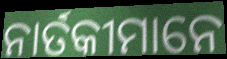
ନାର୍ତକୀମାନେ